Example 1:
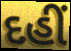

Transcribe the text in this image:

દહીં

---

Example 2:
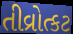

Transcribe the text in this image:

તીવ્રોત્કટ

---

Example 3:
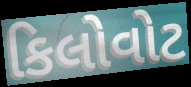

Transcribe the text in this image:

કિલોવોટ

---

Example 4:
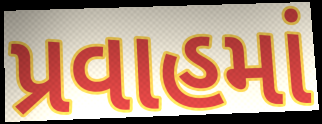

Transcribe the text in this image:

પ્રવાહમાં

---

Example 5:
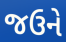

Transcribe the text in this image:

જઉને